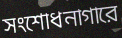
সংশোধনাগারে